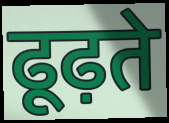
ढूढ़ते